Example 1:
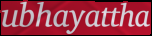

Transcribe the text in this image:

ubhayattha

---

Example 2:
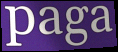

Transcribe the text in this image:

paga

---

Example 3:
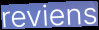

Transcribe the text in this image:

reviens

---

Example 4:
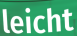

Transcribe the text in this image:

leicht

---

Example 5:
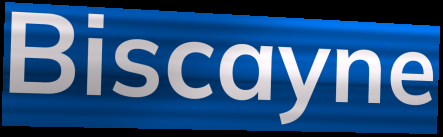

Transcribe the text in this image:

Biscayne